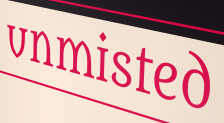
unmisted